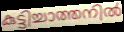
കുട്ടിച്ചാത്തനിൽ